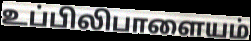
உப்பிலிபாளையம்